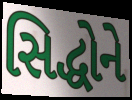
સિદ્ધોને